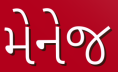
મેનેજ